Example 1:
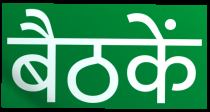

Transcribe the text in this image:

बैठकें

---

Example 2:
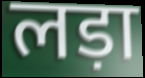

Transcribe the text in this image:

लड़ा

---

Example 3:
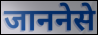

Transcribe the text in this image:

जाननेसे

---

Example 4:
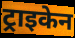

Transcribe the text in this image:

ट्राइकेन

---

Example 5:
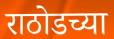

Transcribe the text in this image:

राठोडच्या